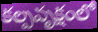
కల్పవృక్షంలో